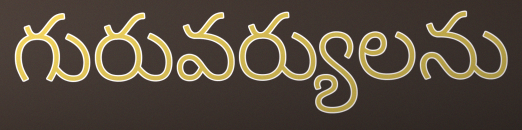
గురువర్యులను